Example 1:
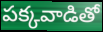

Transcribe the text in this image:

పక్కవాడితో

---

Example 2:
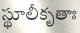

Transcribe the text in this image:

స్థూలీకృతాః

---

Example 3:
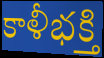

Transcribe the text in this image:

కాళీభక్తి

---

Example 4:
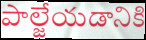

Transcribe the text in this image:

పాల్జేయడానికి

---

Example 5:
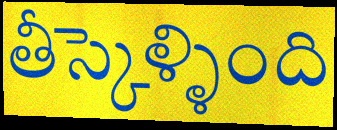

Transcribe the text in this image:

తీస్కెళ్ళింది